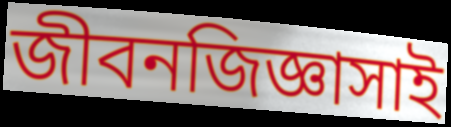
জীবনজিজ্ঞাসাই